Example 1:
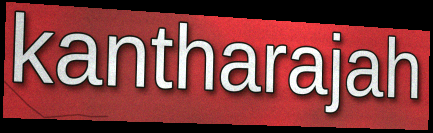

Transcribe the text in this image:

kantharajah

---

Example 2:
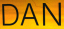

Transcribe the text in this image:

DAN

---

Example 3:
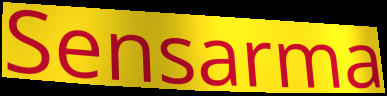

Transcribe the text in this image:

Sensarma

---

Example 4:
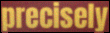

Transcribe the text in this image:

precisely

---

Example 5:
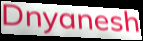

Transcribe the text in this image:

Dnyanesh